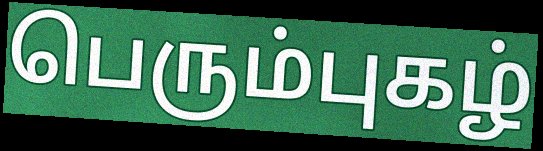
பெரும்புகழ்